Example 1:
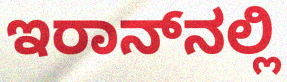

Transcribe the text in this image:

ಇರಾನ್‌ನಲ್ಲಿ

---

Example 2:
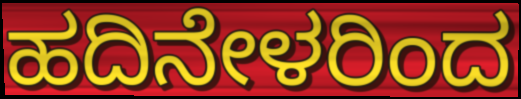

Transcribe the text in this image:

ಹದಿನೇಳರಿಂದ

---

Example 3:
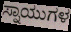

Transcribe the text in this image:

ಸ್ನಾಯುಗಳ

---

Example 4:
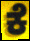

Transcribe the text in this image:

ಕೆ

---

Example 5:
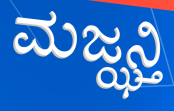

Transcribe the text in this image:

ಮಜ್ಝನ್ತಿ